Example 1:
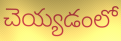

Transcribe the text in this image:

చెయ్యడంలో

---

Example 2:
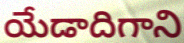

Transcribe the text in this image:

యేడాదిగాని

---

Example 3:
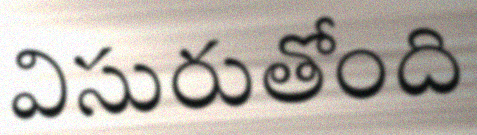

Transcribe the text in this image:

విసురుతోంది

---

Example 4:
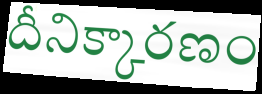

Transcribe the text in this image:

దీనిక్కారణం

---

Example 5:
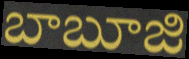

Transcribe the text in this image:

బాబూజి